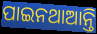
ପାଇନଥାଆନ୍ତି